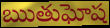
ఋతుఘోష